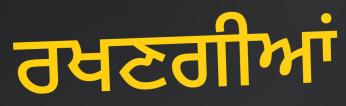
ਰਖਣਗੀਆਂ